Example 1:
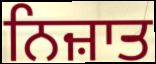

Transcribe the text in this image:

ਨਿਜ਼ਾਤ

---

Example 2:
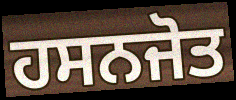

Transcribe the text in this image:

ਹਸਨਜੋਤ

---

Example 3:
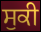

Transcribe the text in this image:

ਸੁਕੀ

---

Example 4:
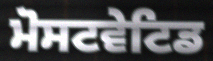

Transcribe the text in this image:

ਮੋਸਟਵੇਟਿਡ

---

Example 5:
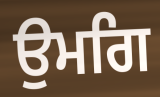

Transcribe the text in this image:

ਉਮਗਿ